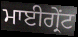
ਮਾਈਗ੍ਰੇਂਟ